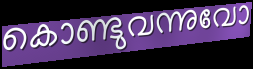
കൊണ്ടുവന്നുവോ